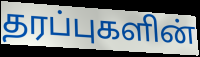
தரப்புகளின்